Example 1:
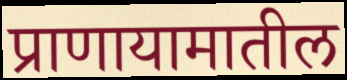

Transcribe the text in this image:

प्राणायामातील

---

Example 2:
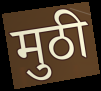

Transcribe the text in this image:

मुठी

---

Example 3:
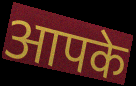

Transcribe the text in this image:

आपके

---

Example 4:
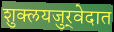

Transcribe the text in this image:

शुक्लयजुर्वेदात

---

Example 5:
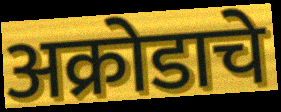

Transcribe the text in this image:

अक्रोडाचे